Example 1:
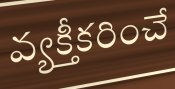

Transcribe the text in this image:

వ్యక్తీకరించే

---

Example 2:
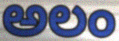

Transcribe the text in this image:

అలం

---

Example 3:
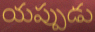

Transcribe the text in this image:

యప్పుడు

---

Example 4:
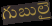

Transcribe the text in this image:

గుబులై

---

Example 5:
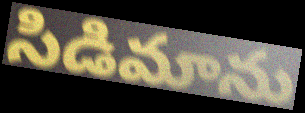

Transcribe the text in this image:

సిడిమాను